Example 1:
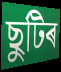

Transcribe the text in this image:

ছুটিৰ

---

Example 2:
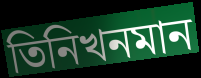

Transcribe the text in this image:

তিনিখনমান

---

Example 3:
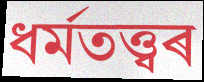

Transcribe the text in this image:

ধৰ্মতত্ত্বৰ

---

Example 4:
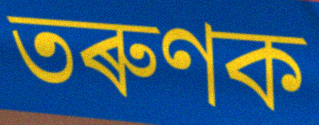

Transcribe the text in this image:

তৰুণক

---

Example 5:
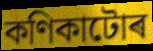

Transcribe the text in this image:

কণিকাটোৰ